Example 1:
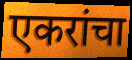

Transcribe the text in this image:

एकरांचा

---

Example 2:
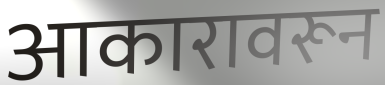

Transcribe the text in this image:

आकारावरून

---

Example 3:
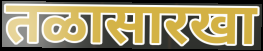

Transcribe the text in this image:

तळासारखा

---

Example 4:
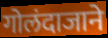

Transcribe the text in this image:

गोलंदाजाने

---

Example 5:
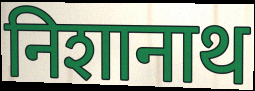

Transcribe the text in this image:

निशानाथ